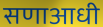
सणाआधी